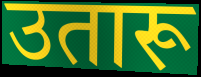
उतारू